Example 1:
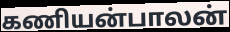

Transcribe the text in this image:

கணியன்பாலன்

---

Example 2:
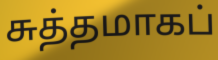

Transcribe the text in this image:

சுத்தமாகப்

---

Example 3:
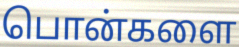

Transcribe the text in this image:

பொன்களை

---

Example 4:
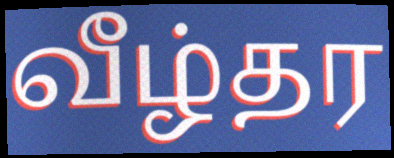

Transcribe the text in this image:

வீழ்தர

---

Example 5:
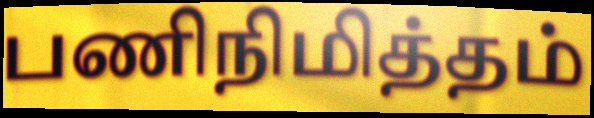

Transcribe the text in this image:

பணிநிமித்தம்